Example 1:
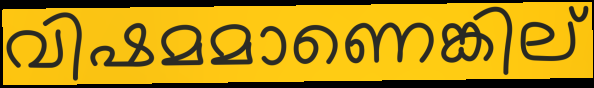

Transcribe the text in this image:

വിഷമമാണെങ്കില്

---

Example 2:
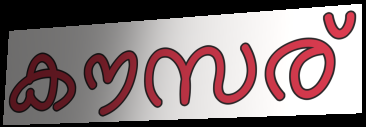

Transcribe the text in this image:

കൗസര്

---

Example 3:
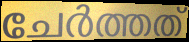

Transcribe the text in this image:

ചേർത്തത്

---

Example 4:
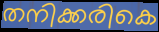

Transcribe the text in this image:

തനിക്കരികെ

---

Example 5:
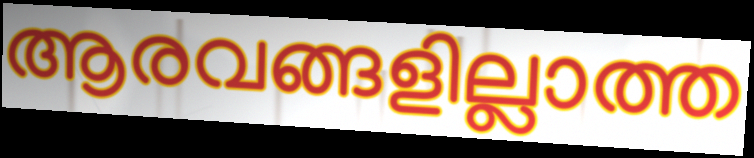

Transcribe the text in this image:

ആരവങ്ങളില്ലാത്ത